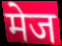
मेज